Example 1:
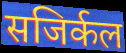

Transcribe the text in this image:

सजिर्कल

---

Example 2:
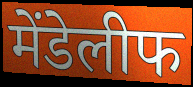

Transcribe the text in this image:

मेंडेलीफ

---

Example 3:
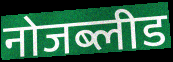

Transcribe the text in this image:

नोजब्लीड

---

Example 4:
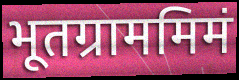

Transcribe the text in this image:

भूतग्राममिमं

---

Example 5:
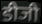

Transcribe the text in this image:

डीजी